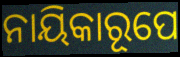
ନାୟିକାରୂପେ